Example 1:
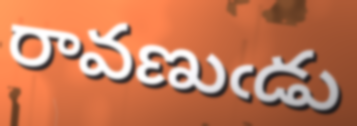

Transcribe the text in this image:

రావణుఁడు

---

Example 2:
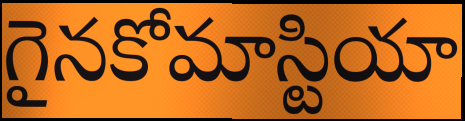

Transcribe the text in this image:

గైనకోమాస్టియా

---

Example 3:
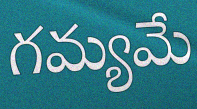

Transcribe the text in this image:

గమ్యమే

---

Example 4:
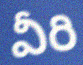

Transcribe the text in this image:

వీరి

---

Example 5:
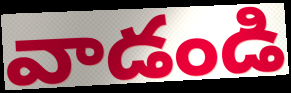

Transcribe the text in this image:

వాడండి